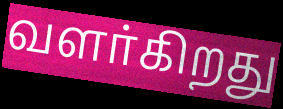
வளர்கிறது